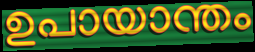
ഉപായാന്തം